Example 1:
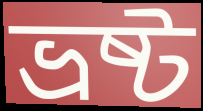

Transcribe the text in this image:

ভ্রষ্ট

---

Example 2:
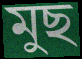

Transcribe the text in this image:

মুছ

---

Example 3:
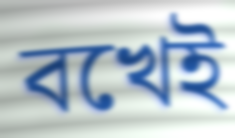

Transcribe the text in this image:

বখেই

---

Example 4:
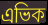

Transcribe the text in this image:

এভিক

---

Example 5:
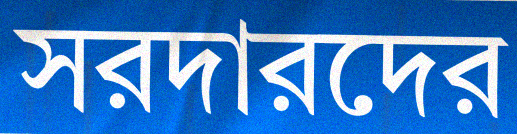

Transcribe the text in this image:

সরদারদের